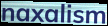
naxalism